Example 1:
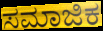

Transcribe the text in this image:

ಸಮಾಜಿಕ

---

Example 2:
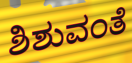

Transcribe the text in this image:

ಶಿಶುವಂತೆ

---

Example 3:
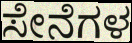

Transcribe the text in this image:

ಸೇನೆಗಳ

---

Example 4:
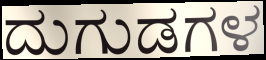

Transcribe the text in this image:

ದುಗುಡಗಳ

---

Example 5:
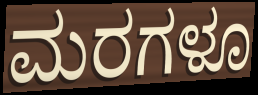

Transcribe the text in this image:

ಮರಗಳೂ